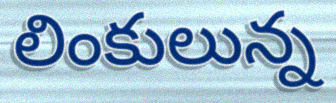
లింకులున్న